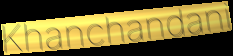
Khanchandani